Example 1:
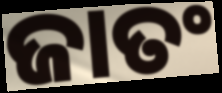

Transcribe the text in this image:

ଜାତଂ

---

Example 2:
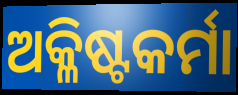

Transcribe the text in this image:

ଅକ୍ଳିଷ୍ଟକର୍ମା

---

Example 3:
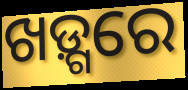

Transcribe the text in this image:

ଖଡ଼୍ଗରେ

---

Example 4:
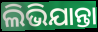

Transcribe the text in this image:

ଲିଭିଯାନ୍ତା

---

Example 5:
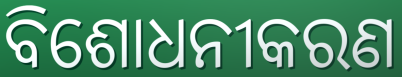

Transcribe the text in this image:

ବିଶୋଧନୀକରଣ